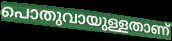
പൊതുവായുള്ളതാണ്